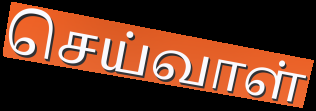
செய்வாள்